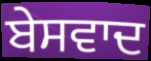
ਬੇਸਵਾਦ